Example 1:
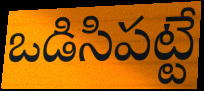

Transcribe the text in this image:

ఒడిసిపట్టే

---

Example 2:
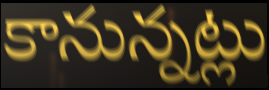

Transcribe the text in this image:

కానున్నట్లు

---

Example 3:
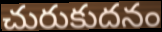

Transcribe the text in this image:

చురుకుదనం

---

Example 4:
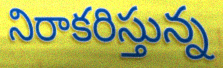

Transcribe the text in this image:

నిరాకరిస్తున్న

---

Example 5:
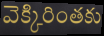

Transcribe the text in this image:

వెక్కిరింతకు